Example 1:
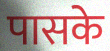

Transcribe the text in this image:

पासके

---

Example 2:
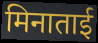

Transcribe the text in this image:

मिनाताई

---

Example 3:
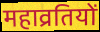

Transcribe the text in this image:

महाव्रतियों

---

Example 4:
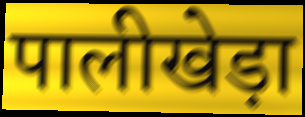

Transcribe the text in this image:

पालीखेड़ा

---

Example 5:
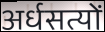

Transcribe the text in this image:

अर्धसत्यों